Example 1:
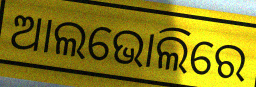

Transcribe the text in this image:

ଆଲଭୋଲିରେ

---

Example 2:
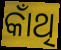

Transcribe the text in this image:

କାଁଥି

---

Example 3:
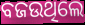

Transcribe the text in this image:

ବଜଉଥିଲେ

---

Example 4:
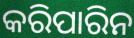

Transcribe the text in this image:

କରିପାରିନ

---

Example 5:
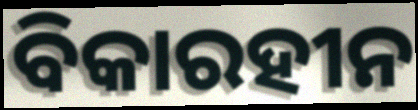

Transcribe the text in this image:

ବିକାରହୀନ